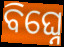
ବିଘ୍ନେ